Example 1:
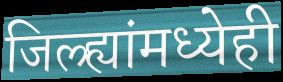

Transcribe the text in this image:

जिल्ह्यांमध्येही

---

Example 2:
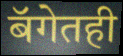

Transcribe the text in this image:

बॅगेतही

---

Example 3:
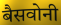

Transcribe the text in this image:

बैसवोनी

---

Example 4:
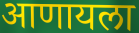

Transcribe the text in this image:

आणायला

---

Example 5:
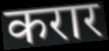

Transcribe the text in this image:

करार